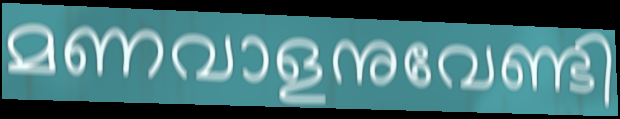
മണവാളനുവേണ്ടി